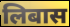
लिबास